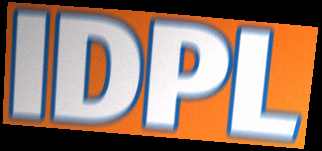
IDPL